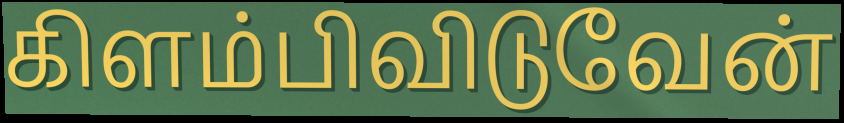
கிளம்பிவிடுவேன்